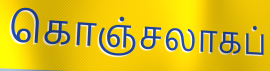
கொஞ்சலாகப்